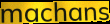
machans